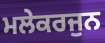
ਮਲੇਕਰਜੁਨ